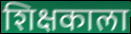
शिक्षकाला